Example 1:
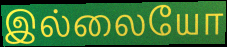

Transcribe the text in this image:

இல்லையோ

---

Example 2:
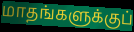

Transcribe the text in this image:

மாதங்களுக்குப்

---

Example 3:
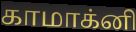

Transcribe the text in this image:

காமாக்னி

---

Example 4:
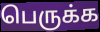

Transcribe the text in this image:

பெருக்க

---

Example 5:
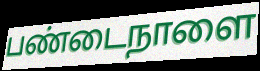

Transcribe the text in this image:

பண்டைநாளை